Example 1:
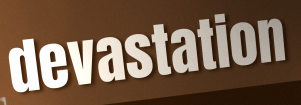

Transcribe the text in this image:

devastation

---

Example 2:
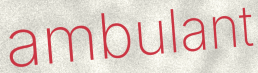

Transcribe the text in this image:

ambulant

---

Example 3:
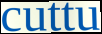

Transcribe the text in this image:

cuttu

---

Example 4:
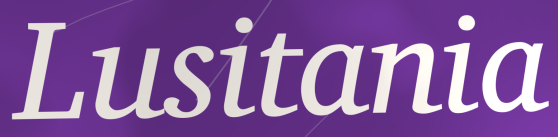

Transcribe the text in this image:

Lusitania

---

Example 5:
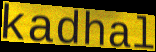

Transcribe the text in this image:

kadhal